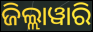
ଜିଲ୍ଲାୱାରି